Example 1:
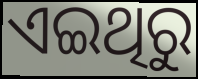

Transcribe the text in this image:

ଏଇଥିରୁ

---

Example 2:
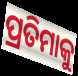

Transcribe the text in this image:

ପ୍ରତିମାକୁ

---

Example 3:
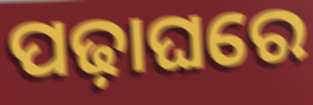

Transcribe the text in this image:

ପଢ଼ାଘରେ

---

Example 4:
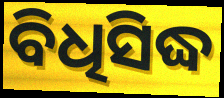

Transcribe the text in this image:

ବିଧିସିଦ୍ଧ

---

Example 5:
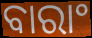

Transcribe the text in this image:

ବାରାଂ